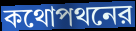
কথোপথনের